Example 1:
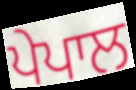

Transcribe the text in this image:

ਪੇਪਾਲ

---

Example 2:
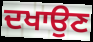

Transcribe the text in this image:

ਦਖਾਉਣ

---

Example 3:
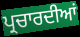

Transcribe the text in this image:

ਪ੍ਰਚਾਰਦੀਆਂ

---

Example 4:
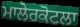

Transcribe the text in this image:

ਮਾਲੇਰਕੋਟਲਾ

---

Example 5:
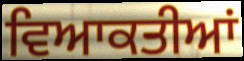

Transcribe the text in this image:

ਵਿਆਕਤੀਆਂ